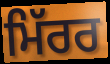
ਮਿੱਰਰ